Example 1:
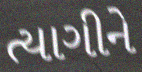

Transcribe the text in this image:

ત્યાગીને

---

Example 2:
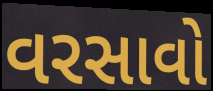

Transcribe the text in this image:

વરસાવો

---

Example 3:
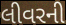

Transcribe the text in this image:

લીવરની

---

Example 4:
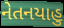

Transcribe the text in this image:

નેતનયાહુ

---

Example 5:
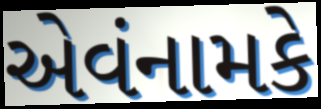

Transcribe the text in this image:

એવંનામકે